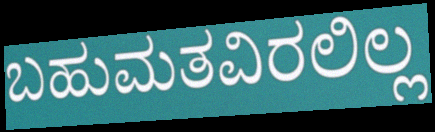
ಬಹುಮತವಿರಲಿಲ್ಲ